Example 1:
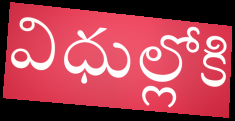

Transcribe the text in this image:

విధుల్లోకి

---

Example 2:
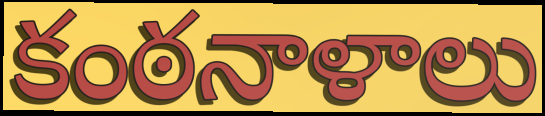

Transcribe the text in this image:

కంఠనాళాలు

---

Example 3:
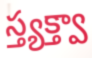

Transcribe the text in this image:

స్త్యక్త్వా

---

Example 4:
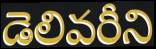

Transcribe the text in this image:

డెలివరీని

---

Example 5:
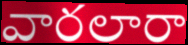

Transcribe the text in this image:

వారలారా